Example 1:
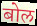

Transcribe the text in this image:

बोल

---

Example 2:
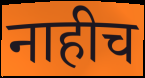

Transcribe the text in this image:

नाहीच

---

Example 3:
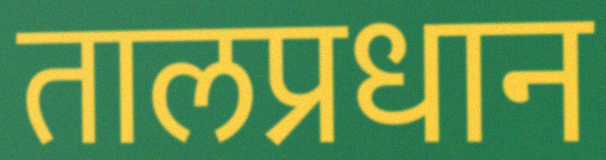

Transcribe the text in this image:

तालप्रधान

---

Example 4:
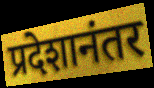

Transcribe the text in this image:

प्रदेशानंतर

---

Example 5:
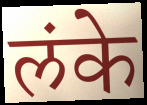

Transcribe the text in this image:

लंके